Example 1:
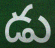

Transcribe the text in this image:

డు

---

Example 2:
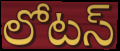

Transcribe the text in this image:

లోటస్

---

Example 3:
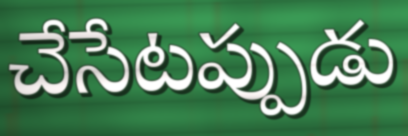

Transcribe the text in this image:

చేసేటప్పుడు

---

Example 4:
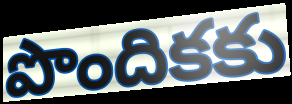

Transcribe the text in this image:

పొందికకు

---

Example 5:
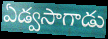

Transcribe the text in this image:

ఏడ్వసాగాడు